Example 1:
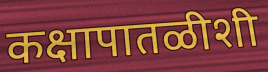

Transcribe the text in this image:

कक्षापातळीशी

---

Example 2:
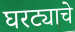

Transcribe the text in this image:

घरट्याचे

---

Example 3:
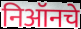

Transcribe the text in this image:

निऑनचे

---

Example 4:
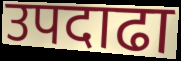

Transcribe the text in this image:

उपदाढा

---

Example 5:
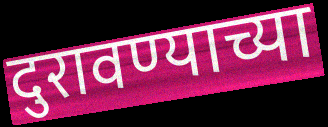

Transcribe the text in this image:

दुरावण्याच्या